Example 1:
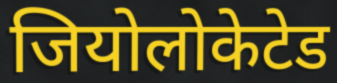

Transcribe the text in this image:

जियोलोकेटेड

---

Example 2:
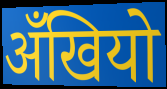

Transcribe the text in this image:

अँखियो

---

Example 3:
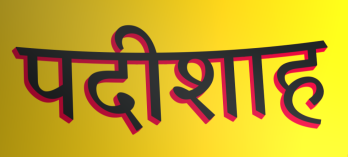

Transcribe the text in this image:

पदीशाह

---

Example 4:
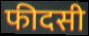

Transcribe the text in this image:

फीदसी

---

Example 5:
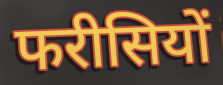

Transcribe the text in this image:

फरीसियों